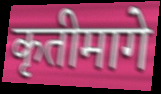
कृतीमागे